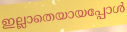
ഇല്ലാതെയായപ്പോൾ